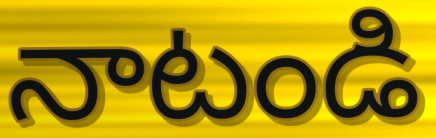
నాటండి